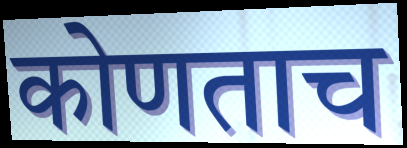
कोणताच